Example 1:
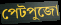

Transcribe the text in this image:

পেটপুজো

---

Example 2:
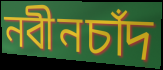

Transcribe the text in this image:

নবীনচাঁদ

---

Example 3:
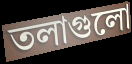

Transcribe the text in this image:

তলাগুলো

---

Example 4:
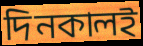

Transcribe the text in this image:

দিনকালই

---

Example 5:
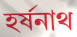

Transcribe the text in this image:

হর্ষনাথ